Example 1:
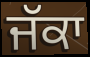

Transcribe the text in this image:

ਜੱਕਾ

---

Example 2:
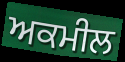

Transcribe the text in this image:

ਅਕਮੀਲ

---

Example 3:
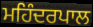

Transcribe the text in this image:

ਮਹਿੰਦਰਪਾਲ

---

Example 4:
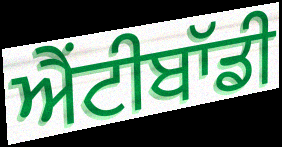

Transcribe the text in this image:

ਐਂਟੀਬਾੱਡੀ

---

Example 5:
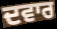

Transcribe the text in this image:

ਦਵਾਰ